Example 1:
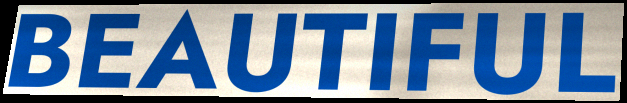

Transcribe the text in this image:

BEAUTIFUL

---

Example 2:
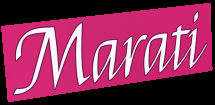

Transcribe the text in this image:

Marati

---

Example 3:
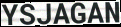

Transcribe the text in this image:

YSJAGAN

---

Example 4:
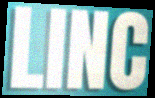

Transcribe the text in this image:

LINC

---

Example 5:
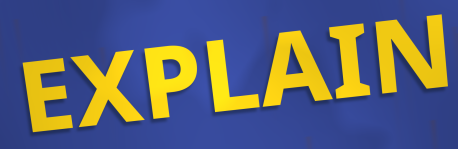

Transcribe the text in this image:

EXPLAIN